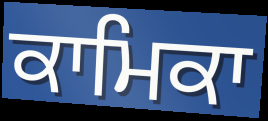
ਕਾਮਿਕਾ